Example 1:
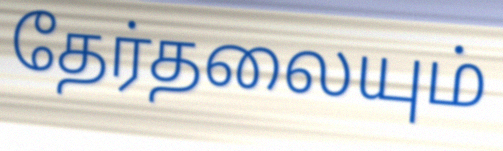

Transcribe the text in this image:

தேர்தலையும்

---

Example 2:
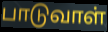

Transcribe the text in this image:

பாடுவாள்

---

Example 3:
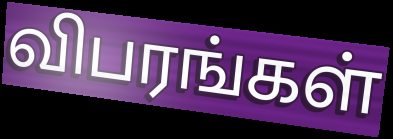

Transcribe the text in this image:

விபரங்கள்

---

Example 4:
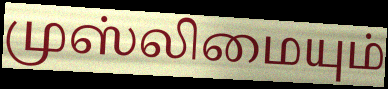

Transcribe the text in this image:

முஸ்லிமையும்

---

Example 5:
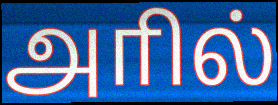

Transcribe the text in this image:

அரில்